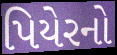
પિયેરનો